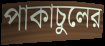
পাকাচুলের